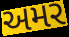
અમર